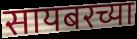
सायबरच्या